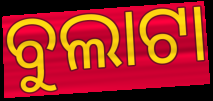
ବୁଲାଟା